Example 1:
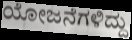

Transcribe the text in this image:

ಯೋಜನೆಗಳಿದ್ದು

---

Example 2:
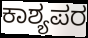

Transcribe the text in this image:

ಕಾಶ್ಯಪರ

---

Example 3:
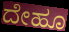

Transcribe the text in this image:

ದೇಹೂ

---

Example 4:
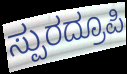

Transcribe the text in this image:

ಸ್ಪುರದ್ರೂಪಿ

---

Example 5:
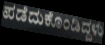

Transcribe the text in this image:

ಪಡೆದುಕೊಂಡಿದ್ದಳು